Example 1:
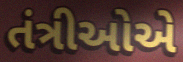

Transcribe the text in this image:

તંત્રીઓએ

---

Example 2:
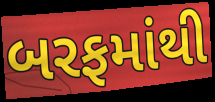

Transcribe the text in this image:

બરફમાંથી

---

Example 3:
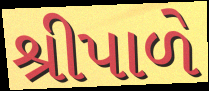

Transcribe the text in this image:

શ્રીપાળે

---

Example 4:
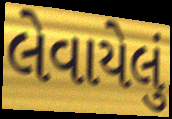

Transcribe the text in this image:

લેવાયેલું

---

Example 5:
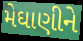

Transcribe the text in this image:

મેઘાણીને